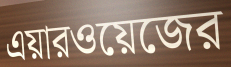
এয়ারওয়েজের